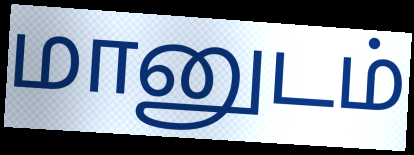
மானுடம்